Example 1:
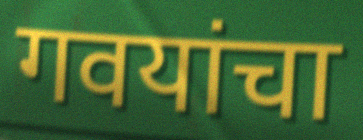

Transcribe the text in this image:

गवयांचा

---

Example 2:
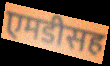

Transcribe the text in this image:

एमडीसह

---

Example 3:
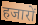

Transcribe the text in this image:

हजारों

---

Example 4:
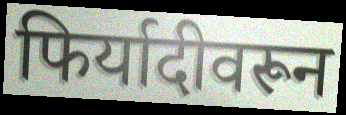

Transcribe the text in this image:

फिर्यादीवरून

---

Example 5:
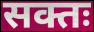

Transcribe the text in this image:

सक्तः